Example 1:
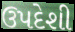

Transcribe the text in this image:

ઉપદેશી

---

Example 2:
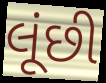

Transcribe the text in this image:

લૂંછી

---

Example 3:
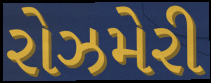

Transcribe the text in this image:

રોઝમેરી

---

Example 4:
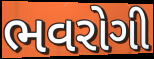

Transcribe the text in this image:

ભવરોગી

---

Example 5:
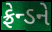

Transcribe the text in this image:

ફ્રેન્ડને